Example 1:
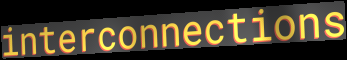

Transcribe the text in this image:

interconnections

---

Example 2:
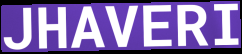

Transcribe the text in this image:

JHAVERI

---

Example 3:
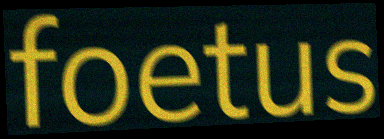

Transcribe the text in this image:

foetus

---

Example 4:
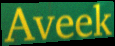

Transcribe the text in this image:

Aveek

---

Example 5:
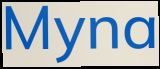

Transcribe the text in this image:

Myna